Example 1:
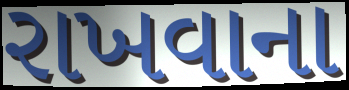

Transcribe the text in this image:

રાખવાના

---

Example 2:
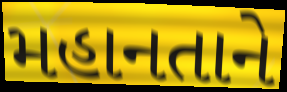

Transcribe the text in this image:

મહાનતાને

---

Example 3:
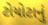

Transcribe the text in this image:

ટોયોટાનું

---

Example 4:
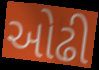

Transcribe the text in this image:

ઓઢી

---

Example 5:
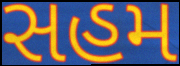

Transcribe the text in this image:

સહમ